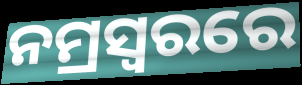
ନମ୍ରସ୍ୱରରେ